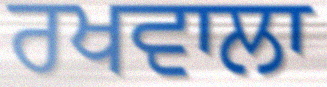
ਰਖਵਾਲਾ